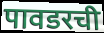
पावडरची